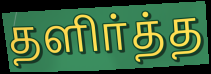
தளிர்த்த